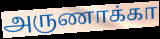
அருணாக்கா